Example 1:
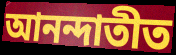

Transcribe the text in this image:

আনন্দাতীত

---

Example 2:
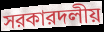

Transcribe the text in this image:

সরকারদলীয়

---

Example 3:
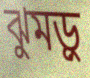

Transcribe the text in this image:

ঝুমড়ু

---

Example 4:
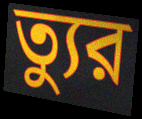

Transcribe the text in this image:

ত্যুর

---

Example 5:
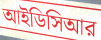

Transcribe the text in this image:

আইডিসিআর